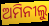
ଅମିନୀଲୁ